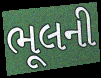
ભૂલની